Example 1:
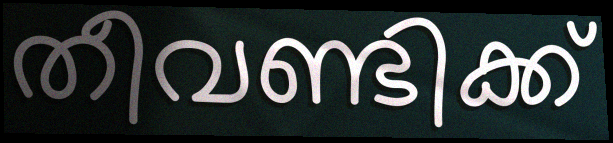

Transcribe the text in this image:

തീവണ്ടിക്ക്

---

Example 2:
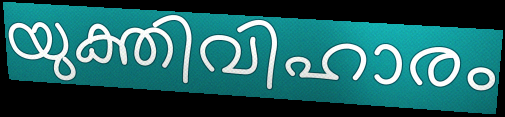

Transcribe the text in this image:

യുക്തിവിഹാരം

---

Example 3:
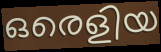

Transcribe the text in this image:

ഒരെളിയ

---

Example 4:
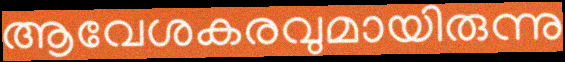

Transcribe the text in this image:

ആവേശകരവുമായിരുന്നു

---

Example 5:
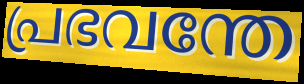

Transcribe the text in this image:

പ്രഭവന്തേ